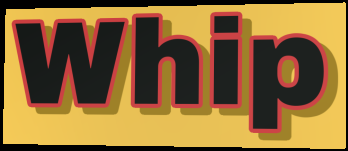
Whip